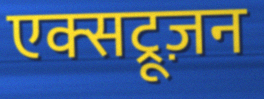
एक्सट्रूज़न